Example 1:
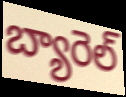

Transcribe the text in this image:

బ్యారెల్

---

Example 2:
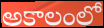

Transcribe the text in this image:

అకాలంలో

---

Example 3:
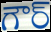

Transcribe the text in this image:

గౌర్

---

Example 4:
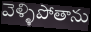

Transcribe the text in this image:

వెళ్ళిపోతాను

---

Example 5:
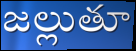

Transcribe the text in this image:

జల్లుతూ